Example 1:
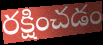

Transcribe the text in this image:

రక్షించడం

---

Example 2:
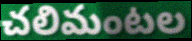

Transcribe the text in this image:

చలిమంటల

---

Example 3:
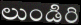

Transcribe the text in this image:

లుండిరి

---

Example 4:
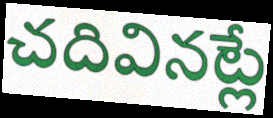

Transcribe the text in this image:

చదివినట్లే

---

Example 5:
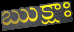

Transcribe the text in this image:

ఋక్షాః